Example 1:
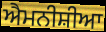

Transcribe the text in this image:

ਐਮਨੀਸ਼ੀਆ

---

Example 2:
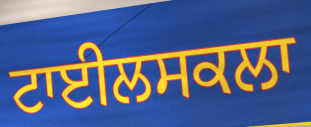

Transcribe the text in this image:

ਟਾਈਲਸਕਲਾ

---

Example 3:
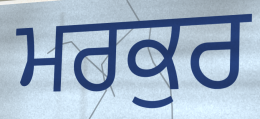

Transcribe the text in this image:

ਮਰਕੁਰ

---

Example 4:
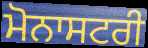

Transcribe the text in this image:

ਮੋਨਾਸਟਰੀ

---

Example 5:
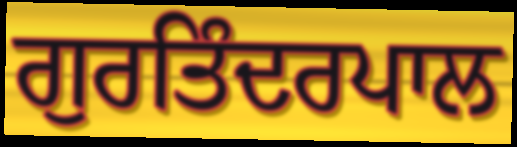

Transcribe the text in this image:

ਗੁਰਤਿੰਦਰਪਾਲ